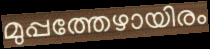
മുപ്പത്തേഴായിരം